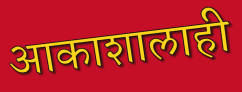
आकाशालाही